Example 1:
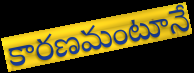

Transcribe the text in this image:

కారణమంటూనే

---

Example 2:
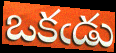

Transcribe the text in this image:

ఒకఁడు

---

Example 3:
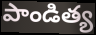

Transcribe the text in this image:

పాండిత్య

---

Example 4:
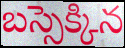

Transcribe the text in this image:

బస్సెక్కిన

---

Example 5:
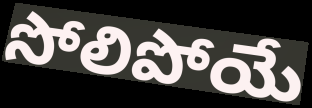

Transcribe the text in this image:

సోలిపోయే